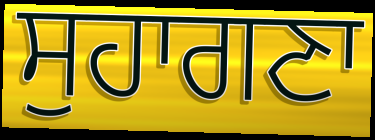
ਸੁਹਾਗਣਾ